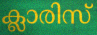
ക്ലാരിസ്